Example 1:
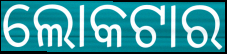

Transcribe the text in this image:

ଲୋକଟାର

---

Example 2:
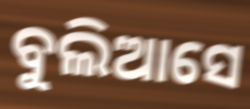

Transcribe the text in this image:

ବୁଲିଆସେ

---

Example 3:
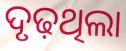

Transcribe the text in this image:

ଦୃଢ଼ଥିଲା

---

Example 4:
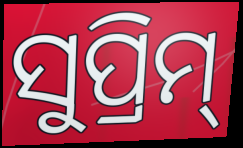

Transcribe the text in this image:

ସୁପ୍ରିମ୍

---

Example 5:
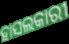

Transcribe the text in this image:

ହାସଲକାରୀ